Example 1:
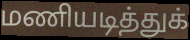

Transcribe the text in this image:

மணியடித்துக்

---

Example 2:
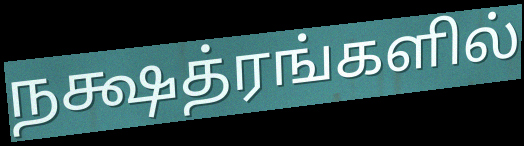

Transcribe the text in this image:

நக்ஷத்ரங்களில்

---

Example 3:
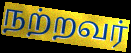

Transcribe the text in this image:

நற்றவர்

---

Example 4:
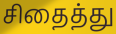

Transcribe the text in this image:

சிதைத்து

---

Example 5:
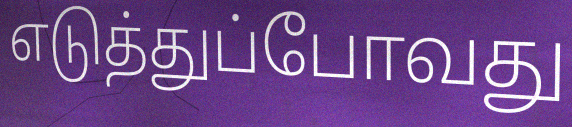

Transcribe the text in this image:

எடுத்துப்போவது